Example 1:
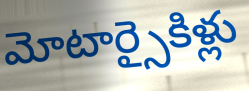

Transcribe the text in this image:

మోటార్సైకిళ్లు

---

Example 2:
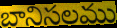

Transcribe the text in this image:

బానిసలము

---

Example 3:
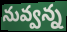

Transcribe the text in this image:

నువ్వన్న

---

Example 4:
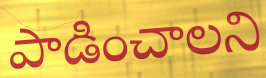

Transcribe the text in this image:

పాడించాలని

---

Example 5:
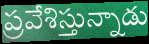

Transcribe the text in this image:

ప్రవేశిస్తున్నాడు